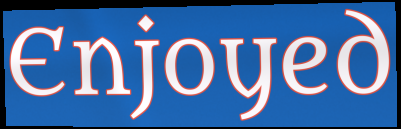
Enjoyed